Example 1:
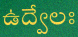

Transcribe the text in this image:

ఉద్వేలః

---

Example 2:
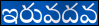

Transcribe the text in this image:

ఇరువదవ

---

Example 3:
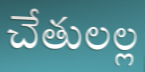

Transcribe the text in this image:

చేతులల్ల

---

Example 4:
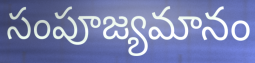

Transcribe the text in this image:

సంపూజ్యమానం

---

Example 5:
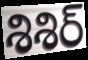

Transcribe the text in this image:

శిశిర్